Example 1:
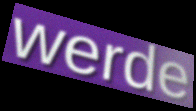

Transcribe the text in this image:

werde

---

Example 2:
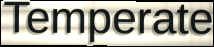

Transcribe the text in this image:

Temperate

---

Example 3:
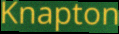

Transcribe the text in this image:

Knapton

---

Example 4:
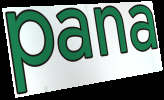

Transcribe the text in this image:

pana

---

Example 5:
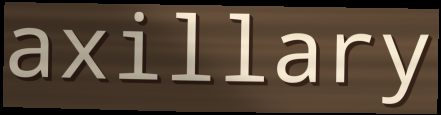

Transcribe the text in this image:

axillary